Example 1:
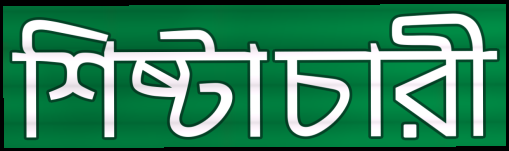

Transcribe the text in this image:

শিষ্টাচারী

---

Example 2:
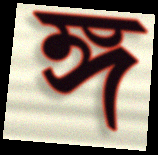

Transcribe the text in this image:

ঙ্গ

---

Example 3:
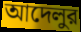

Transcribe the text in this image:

আদেলুর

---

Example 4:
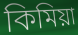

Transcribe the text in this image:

কিমিয়া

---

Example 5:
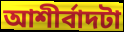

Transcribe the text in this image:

আশীর্বাদটা